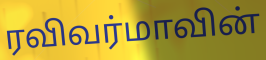
ரவிவர்மாவின்